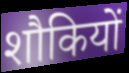
शौकियों